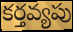
కర్తవ్యపు